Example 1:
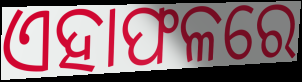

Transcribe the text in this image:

ଏହାଫଳରେ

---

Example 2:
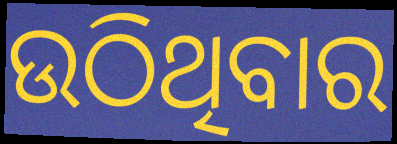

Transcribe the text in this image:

ଉଠିଥିବାର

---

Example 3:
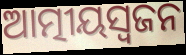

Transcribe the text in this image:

ଆତ୍ମୀୟସ୍ୱଜନ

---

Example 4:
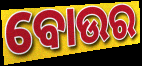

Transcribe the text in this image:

ବୋଉର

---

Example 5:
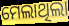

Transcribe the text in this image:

ମେଲାଥିଲା